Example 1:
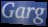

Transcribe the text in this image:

Garg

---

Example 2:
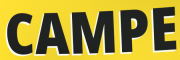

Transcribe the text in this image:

CAMPE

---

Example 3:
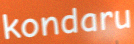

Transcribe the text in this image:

kondaru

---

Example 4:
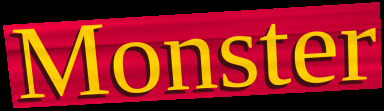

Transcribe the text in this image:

Monster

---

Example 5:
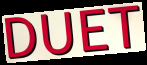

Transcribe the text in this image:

DUET